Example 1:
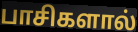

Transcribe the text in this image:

பாசிகளால்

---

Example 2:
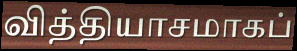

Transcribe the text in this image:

வித்தியாசமாகப்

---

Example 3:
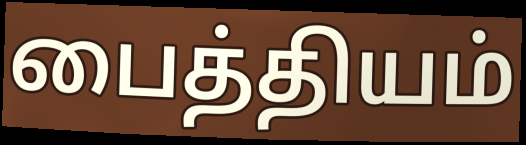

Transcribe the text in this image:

பைத்தியம்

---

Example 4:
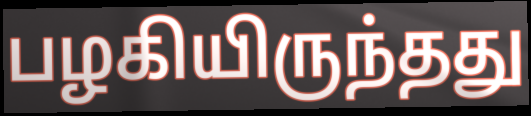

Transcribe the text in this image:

பழகியிருந்தது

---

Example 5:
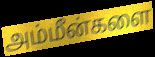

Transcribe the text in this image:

அம்மீன்களை